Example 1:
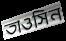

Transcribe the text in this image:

তাওসিন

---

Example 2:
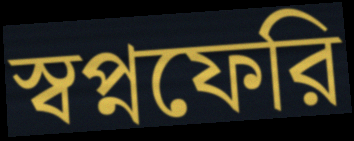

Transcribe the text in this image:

স্বপ্নফেরি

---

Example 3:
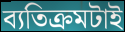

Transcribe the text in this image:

ব্যতিক্রমটাই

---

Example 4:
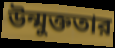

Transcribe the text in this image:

উন্মুক্ততার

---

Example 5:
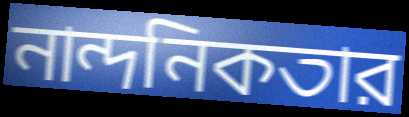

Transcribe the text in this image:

নান্দনিকতার